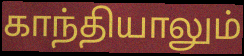
காந்தியாலும்